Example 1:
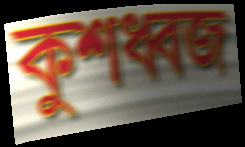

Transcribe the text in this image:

কুশধ্বজ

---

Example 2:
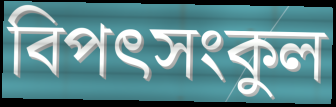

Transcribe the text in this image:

বিপৎসংকুল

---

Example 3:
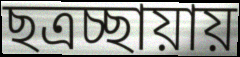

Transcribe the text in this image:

ছত্রচ্ছায়ায়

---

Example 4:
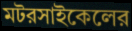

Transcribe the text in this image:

মটরসাইকেলের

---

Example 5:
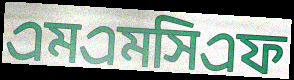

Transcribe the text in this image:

এমএমসিএফ